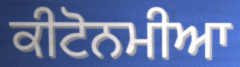
ਕੀਟੋਨਮੀਆ